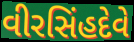
વીરસિંહદેવે